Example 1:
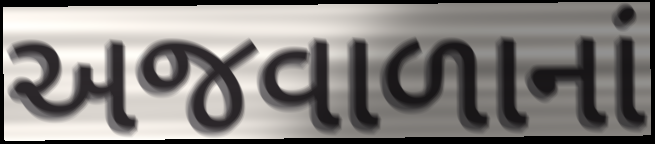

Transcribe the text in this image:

અજવાળાનાં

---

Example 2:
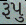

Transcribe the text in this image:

રૂપુ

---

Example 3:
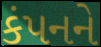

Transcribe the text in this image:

કંપનને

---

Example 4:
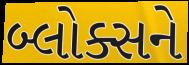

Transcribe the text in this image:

બ્લોક્સને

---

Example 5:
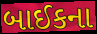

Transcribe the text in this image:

બાઈકના